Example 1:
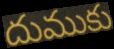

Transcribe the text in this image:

దుముకు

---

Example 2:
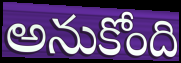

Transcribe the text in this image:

అనుకోంది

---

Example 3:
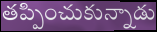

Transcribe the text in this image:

తప్పించుకున్నాడు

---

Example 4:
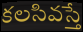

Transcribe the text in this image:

కలసివస్తే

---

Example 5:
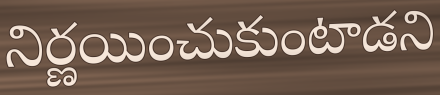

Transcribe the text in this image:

నిర్ణయించుకుంటాడని